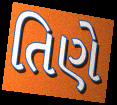
તિણે